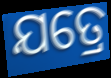
ଯତ୍ରେ